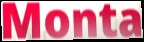
Monta